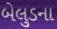
બેલુડના